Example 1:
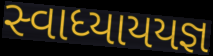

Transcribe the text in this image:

સ્વાધ્યાયયજ્ઞ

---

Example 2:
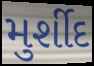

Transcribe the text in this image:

મુર્શીદ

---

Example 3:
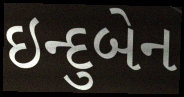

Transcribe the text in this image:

ઇન્દુબેન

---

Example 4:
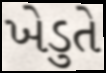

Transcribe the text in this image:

ખેડુતે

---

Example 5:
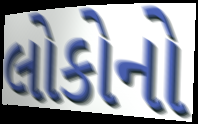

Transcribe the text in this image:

લોકોનો